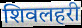
शिवलहरी